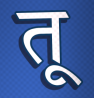
तू